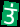
उ॑